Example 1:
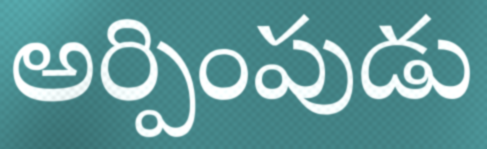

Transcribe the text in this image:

అర్పింపుడు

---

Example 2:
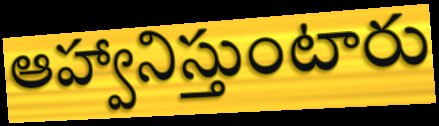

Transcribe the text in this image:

ఆహ్వానిస్తుంటారు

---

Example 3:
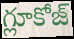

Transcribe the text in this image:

గ్లూకోజ్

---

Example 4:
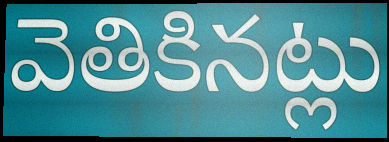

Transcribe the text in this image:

వెతికినట్లు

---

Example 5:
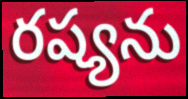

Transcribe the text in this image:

రష్యను